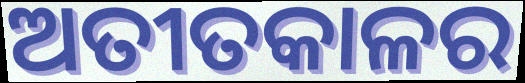
ଅତୀତକାଳର